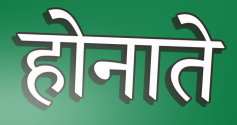
होनाते